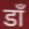
डॉं